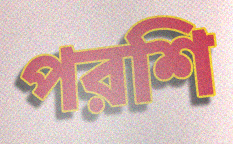
পরশি